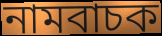
নামবাচক